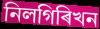
নিলগিৰিখন